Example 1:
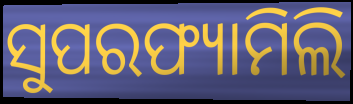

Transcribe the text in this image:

ସୁପରଫ୍ୟାମିଲି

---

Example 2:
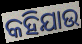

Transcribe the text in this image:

କହିଯାଉ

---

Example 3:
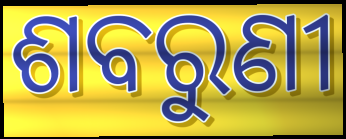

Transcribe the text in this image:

ଶବରୁଣୀ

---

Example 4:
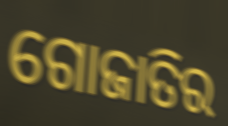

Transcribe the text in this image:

ଗୋଜାତିର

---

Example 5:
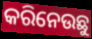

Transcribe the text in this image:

କରିନେଉଛୁ